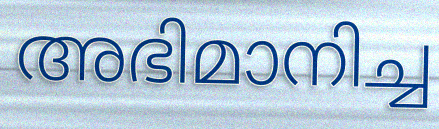
അഭിമാനിച്ച